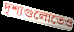
দৃশ্যগুলোতেও